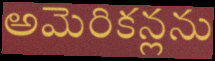
అమెరికన్లను